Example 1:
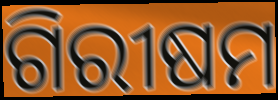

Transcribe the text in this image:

ଗିରୀଷମ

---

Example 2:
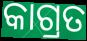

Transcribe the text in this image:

କାଗ୍ରତ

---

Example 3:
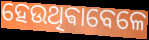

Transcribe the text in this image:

ହେଉଥିଵାବେଳେ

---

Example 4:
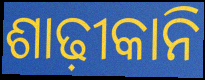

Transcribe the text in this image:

ଶାଢ଼ୀକାନି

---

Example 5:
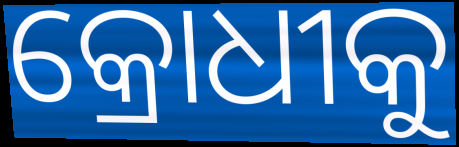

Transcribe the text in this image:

କ୍ରୋଧୀକୁ